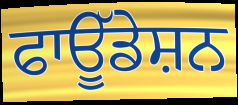
ਫਾਊੱਡੇਸ਼ਨ